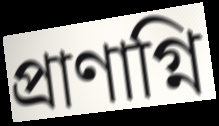
প্রাণাগ্নি